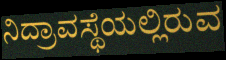
ನಿದ್ರಾವಸ್ಥೆಯಲ್ಲಿರುವ